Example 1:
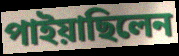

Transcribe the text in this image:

পাইয়াছিলেন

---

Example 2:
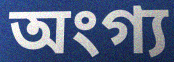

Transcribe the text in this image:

অংগ্য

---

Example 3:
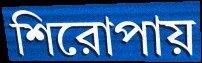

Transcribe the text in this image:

শিরোপায়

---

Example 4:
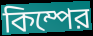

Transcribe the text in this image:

কিম্পের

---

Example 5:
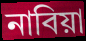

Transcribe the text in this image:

নাবিয়া